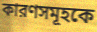
কারণসমূহকে